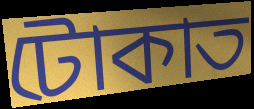
টোকাত